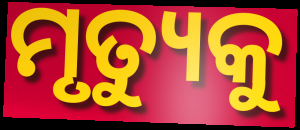
ମୃତ୍ୟୁକୁ